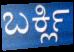
ಬರ್ಕ್ಲಿ